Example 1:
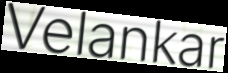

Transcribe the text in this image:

Velankar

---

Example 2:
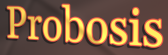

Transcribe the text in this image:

Probosis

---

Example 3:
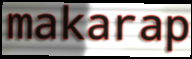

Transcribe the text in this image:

makarap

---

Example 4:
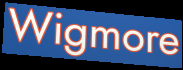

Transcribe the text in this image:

Wigmore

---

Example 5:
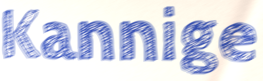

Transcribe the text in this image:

Kannige